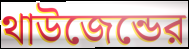
থাউজেন্ডের